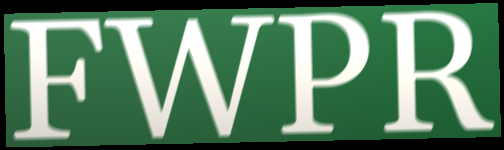
FWPR